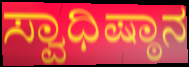
ಸ್ವಾಧಿಷ್ಠಾನ